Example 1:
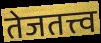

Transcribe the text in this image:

तेजतत्त्व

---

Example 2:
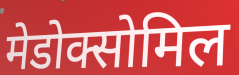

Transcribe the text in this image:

मेडोक्सोमिल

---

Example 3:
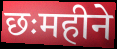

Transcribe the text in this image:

छःमहीने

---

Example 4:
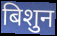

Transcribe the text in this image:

बिशुन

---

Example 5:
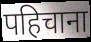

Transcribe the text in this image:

पहिचाना